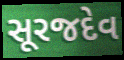
સૂરજદેવ